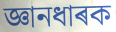
জ্ঞানধাৰক